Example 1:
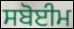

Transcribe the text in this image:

ਸਬੋਈਮ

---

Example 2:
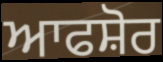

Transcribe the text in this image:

ਆਫਸ਼ੋਰ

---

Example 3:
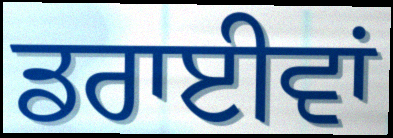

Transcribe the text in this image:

ਡਰਾਈਵਾਂ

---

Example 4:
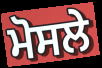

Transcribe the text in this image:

ਮੋਸਲੇ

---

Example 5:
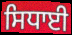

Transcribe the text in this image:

ਸਿਧਾਈ